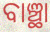
ବାଞ୍ଛା